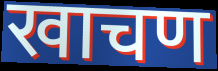
खाचण